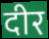
दीर